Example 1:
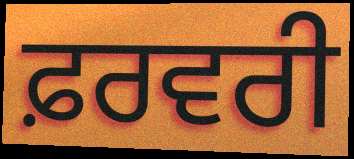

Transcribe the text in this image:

ਫ਼ਰਵਰੀ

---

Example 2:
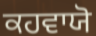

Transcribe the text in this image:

ਕਹਵਾਯੋ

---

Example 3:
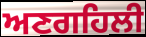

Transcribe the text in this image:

ਅਣਗਹਿਲੀ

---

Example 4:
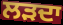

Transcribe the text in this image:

ਲੜਦਾ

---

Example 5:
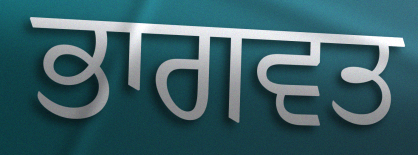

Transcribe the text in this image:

ਭਾਗਵਤ